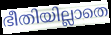
ഭീതിയില്ലാതെ